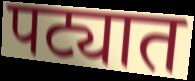
पट्यात